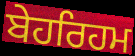
ਬੇਹਰਿਹਮ